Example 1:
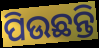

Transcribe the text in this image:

ପିଉଛନ୍ତି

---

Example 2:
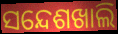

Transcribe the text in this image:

ସନ୍ଦେଶଖାଲି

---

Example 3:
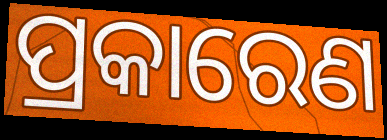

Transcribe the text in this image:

ପ୍ରକାରେଣ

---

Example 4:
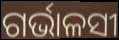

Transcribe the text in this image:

ଗର୍ଭାଳସୀ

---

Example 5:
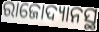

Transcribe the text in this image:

ରାଜୋଦ୍ୟାନସ୍ଥ